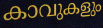
കാവുകളും